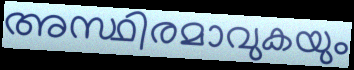
അസ്ഥിരമാവുകയും